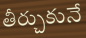
తీర్చుకునే